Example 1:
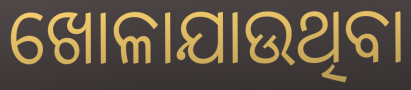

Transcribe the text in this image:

ଖୋଳାଯାଉଥିବା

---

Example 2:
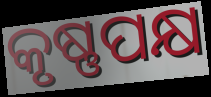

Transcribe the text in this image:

କୃଷ୍ଣପକ୍ଷ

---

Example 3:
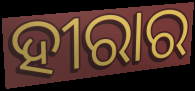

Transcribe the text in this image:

ହୀରାର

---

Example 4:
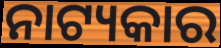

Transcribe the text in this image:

ନାଟ୍ୟକାର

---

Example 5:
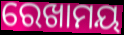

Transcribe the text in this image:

ରେଖାମୟ